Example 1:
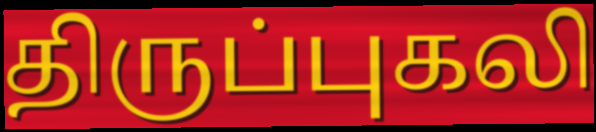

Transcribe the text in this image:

திருப்புகலி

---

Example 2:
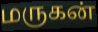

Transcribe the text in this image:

மருகன்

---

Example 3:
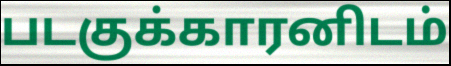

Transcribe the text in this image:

படகுக்காரனிடம்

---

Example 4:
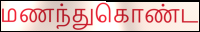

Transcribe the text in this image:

மணந்துகொண்ட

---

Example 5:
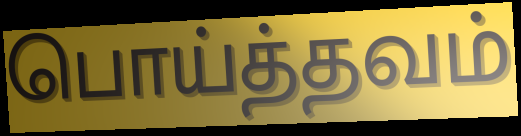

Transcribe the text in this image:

பொய்த்தவம்